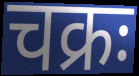
चक्रः